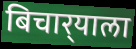
बिचार्‍याला